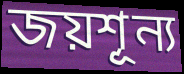
জয়শূন্য